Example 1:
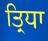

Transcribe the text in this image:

ਤ੍ਰਿਧਾ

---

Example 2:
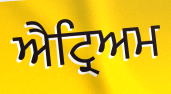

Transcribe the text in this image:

ਐਟ੍ਰਿਅਮ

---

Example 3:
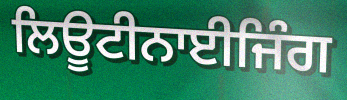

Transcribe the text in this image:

ਲਿਊਟੀਨਾਈਜਿੰਗ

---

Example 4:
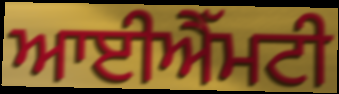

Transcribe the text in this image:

ਆਈਐੱਮਟੀ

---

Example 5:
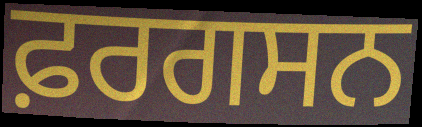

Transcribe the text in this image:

ਫ਼ਰਗਸਨ